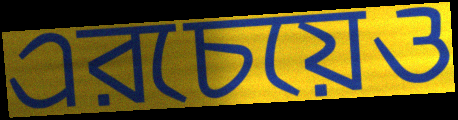
এরচেয়েও